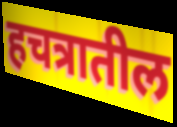
हचत्रातील